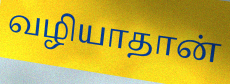
வழியாதான்